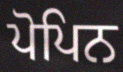
ਪੋਪਿਨ